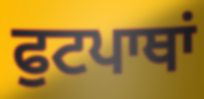
ਫੁਟਪਾਥਾਂ